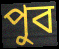
পুব